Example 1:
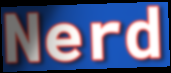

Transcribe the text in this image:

Nerd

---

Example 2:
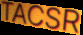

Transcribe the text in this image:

TACSR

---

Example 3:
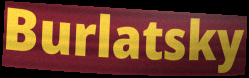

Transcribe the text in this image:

Burlatsky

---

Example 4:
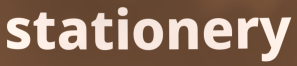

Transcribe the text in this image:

stationery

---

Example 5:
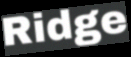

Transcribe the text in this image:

Ridge